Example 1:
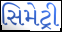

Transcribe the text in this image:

સિમેટ્રી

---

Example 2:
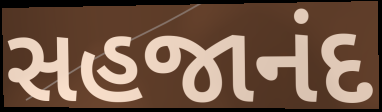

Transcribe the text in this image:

સહજાનંદ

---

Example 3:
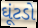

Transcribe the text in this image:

ઘૂંટડો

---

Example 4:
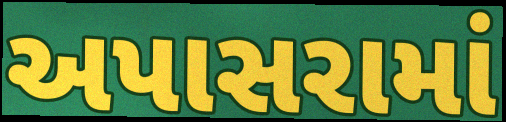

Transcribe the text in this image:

અપાસરામાં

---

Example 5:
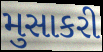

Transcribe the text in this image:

મુસાકરી